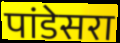
पांडेसरा